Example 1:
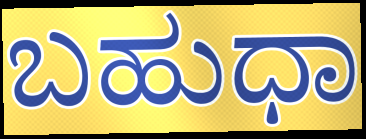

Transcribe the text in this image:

ಬಹುಧಾ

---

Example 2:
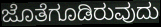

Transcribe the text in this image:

ಜೊತೆಗೂಡಿರುವುದು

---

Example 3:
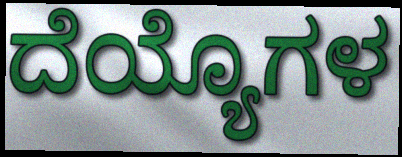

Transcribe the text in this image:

ದೆಯ್ಯೊಗಳ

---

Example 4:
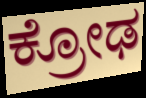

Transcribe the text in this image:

ಕ್ರೋಢ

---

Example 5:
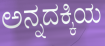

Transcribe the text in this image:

ಅನ್ನದಕ್ಕಿಯ